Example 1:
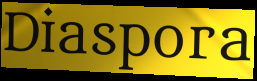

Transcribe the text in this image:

Diaspora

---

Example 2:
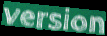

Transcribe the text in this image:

version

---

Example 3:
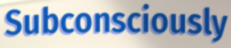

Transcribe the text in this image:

Subconsciously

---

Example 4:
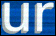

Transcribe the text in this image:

ur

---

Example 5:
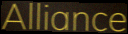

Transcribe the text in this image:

Alliance